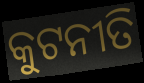
କୁଟନୀତି